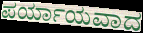
ಪರ್ಯಾಯವಾದ